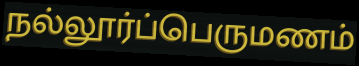
நல்லூர்ப்பெருமணம்